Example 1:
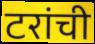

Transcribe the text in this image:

टरांची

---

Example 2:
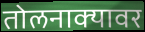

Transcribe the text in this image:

तोलनाक्यावर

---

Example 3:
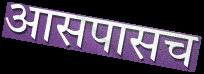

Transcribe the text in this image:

आसपासच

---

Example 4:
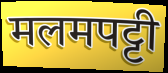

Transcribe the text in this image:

मलमपट्टी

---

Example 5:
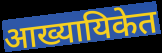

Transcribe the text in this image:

आख्यायिकेत